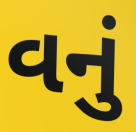
વનું